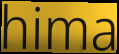
hima